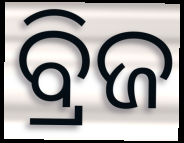
ବ୍ରିଜ